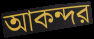
আকন্দর